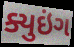
ક્યુઇંગ